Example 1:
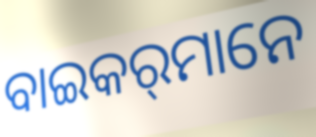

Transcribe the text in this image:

ବାଇକର୍‌ମାନେ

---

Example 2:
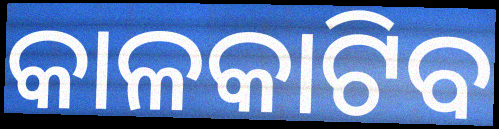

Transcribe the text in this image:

କାଳକାଟିବ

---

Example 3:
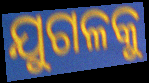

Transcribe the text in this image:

ଯୁଗଳକୁ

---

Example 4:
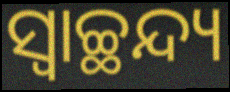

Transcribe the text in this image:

ସ୍ୱାଚ୍ଛନ୍ଦ୍ୟ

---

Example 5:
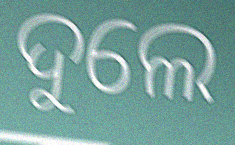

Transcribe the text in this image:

ଦୁଲେ